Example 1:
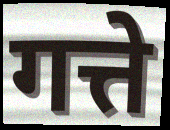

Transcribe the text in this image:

गत्ते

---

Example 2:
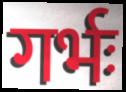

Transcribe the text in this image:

गर्भः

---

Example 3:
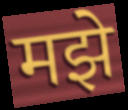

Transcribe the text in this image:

मझे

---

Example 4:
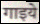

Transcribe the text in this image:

गाइये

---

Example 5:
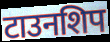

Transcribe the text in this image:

टाउनशिप